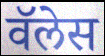
वॅलेस